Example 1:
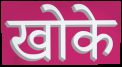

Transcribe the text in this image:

खोके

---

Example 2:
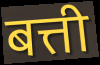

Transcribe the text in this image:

बत्ती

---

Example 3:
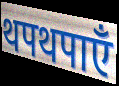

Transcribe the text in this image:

थपथपाएँ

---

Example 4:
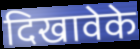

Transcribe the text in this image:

दिखावेके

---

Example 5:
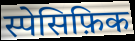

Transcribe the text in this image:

स्पेसिफ़िक